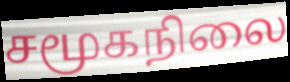
சமூகநிலை